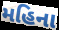
મહિના